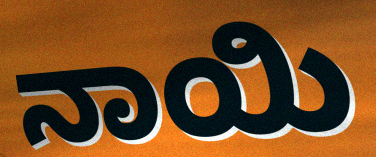
ನಾಯಿ